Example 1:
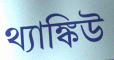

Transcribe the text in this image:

থ্যাঙ্কিউ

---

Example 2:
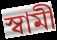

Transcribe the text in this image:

স্বামী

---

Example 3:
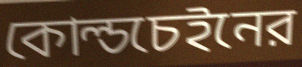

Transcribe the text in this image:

কোল্ডচেইনের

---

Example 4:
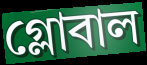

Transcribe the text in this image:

গ্লোবাল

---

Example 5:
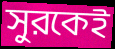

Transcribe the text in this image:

সুরকেই